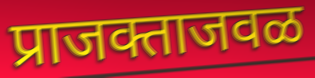
प्राजक्ताजवळ